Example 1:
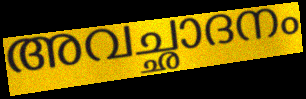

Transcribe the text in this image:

അവച്ഛാദനം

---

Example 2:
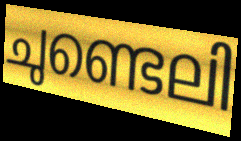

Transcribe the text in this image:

ചുണ്ടെലി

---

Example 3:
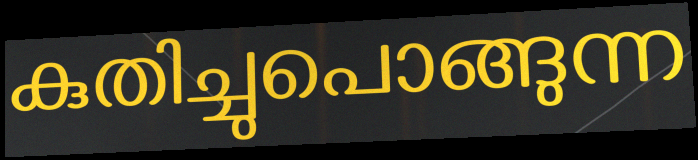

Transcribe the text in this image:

കുതിച്ചുപൊങ്ങുന്ന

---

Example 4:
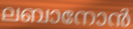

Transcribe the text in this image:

ലബാനോൻ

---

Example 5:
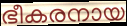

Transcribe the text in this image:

ഭീകരനായ